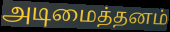
அடிமைத்தனம்